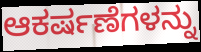
ಆಕರ್ಷಣೆಗಳನ್ನು